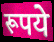
रूपये